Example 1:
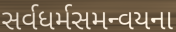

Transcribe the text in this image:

સર્વધર્મસમન્વયના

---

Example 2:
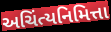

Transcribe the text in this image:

અચિંત્યનિમિત્તા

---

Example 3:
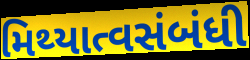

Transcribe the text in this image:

મિથ્યાત્વસંબંધી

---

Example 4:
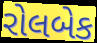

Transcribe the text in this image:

રોલબેક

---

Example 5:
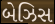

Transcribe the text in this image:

બેઝિસ